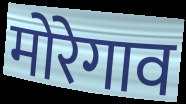
मोरेगाव